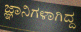
ಜ್ಞಾನಿಗಳಾಗಿದ್ದ